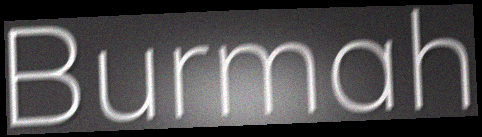
Burmah